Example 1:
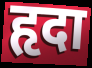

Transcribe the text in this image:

हृदा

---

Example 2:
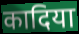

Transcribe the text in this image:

कादिया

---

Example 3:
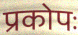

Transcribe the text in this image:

प्रकोपः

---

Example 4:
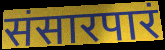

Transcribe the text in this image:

संसारपारं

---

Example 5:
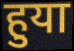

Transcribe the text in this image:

हुया